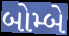
બોમ્બે